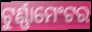
ଟୁର୍ଣ୍ଣାମେଂଟର